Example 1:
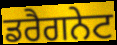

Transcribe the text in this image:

ਡਰੈਗਨੇਟ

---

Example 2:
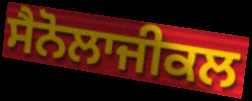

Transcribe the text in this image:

ਸੈਨੋਲਾਜੀਕਲ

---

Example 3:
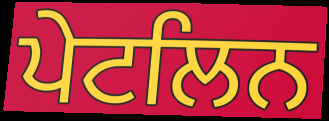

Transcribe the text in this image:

ਪੇਟਲਿਨ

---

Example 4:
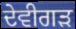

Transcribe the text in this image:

ਦੇਵੀਗੜ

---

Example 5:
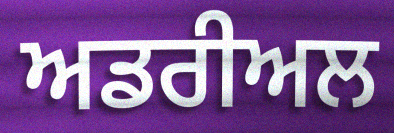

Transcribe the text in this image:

ਅਡਰੀਅਲ